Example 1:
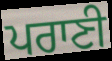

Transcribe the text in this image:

ਪਰਾਣੀ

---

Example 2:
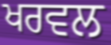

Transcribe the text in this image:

ਖਰਵਲ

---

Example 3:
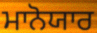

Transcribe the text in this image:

ਮਾਨੋਯਾਰ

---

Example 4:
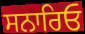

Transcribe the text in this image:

ਸਨਾਰਿਓ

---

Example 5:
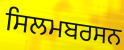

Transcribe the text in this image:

ਸਿਲਮਬਰਸਨ